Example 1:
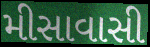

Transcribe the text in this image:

મીસાવાસી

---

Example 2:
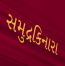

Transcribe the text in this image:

સમુદ્રકિનારા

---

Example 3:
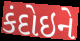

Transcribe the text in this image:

કંદોઇને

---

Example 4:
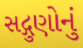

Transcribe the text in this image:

સદ્ગુણોનું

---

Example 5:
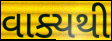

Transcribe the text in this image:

વાક્યથી